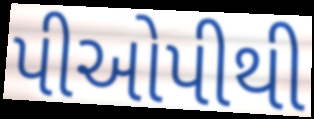
પીઓપીથી